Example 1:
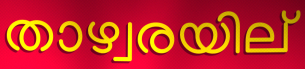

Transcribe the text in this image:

താഴ്വരയില്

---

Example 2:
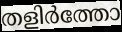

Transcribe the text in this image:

തളിർത്തോ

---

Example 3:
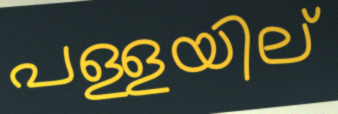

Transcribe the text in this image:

പള്ളയില്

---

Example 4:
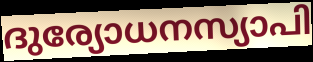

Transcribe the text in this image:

ദുര്യോധനസ്യാപി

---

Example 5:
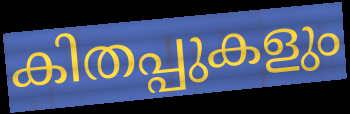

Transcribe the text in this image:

കിതപ്പുകളും